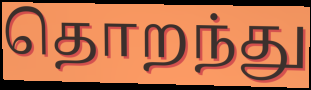
தொறந்து